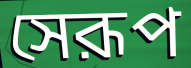
সেরূপ